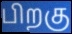
பிறகு